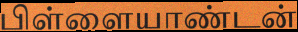
பிள்ளையாண்டன்